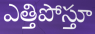
ఎత్తిపోస్తూ